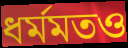
ধর্মমতও